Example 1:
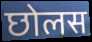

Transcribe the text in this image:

छोलस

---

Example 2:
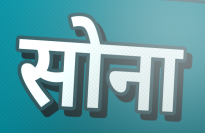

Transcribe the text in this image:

सोना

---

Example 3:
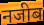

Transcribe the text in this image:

नजीब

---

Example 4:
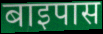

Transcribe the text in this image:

बाइपास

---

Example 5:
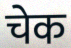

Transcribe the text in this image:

चेक